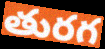
తురగ